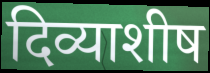
दिव्याशीष